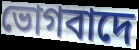
ভোগবাদে